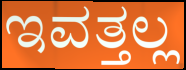
ಇವತ್ತಲ್ಲ